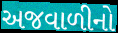
અજવાળીનો